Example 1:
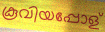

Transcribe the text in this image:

കൂവിയപ്പോള്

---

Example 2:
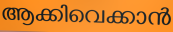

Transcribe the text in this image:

ആക്കിവെക്കാൻ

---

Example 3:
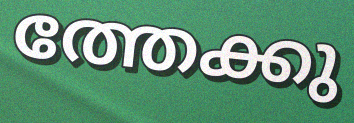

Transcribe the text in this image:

ത്തേക്കു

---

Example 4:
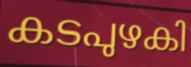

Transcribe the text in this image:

കടപുഴകി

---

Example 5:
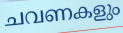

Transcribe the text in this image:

ചവണകളും